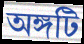
অঙ্গটি